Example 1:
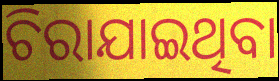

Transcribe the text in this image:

ଚିରାଯାଇଥିବା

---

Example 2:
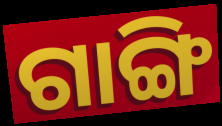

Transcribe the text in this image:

ଗାଙ୍ଗି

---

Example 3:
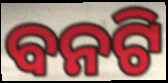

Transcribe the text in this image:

ବନଟି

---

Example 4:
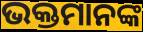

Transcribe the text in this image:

ଭକ୍ତମାନଙ୍କ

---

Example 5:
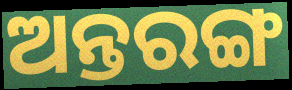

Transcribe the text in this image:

ଅନ୍ତରଙ୍ଗ